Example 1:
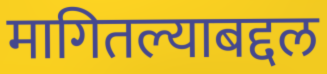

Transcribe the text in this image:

मागितल्याबद्दल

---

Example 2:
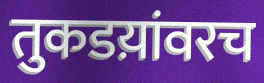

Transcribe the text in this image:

तुकडय़ांवरच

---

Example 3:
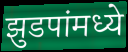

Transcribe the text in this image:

झुडपांमध्ये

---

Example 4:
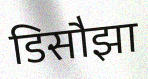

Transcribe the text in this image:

डिसौझा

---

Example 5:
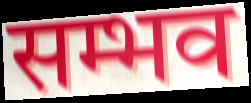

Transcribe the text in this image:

सम्भव